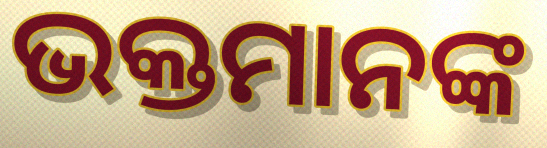
ଭକ୍ତମାନଙ୍କ